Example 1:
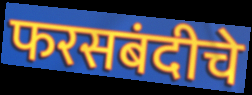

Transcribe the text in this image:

फरसबंदीचे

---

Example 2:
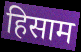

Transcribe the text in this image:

हिसाम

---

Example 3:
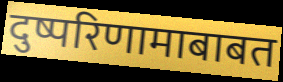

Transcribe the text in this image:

दुष्परिणामाबाबत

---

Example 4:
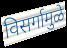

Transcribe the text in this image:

विसर्गामुळे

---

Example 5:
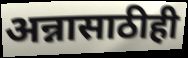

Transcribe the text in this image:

अन्नासाठीही